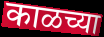
काळच्या